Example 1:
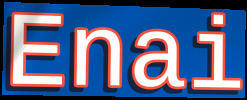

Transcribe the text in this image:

Enai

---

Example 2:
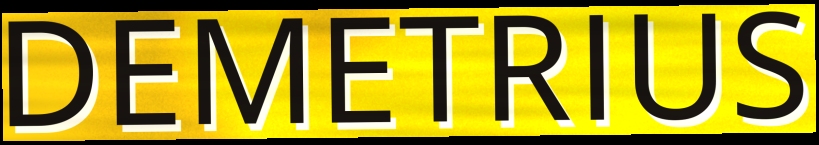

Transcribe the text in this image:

DEMETRIUS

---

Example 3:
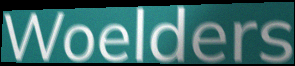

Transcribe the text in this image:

Woelders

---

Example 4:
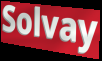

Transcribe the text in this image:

Solvay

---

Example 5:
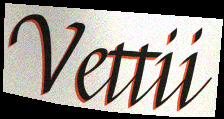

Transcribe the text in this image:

Vettii